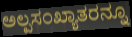
ಅಲ್ಪಸಂಖ್ಯಾತರನ್ನೂ